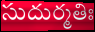
సుదుర్మతిః